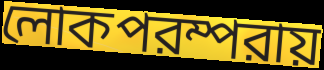
লোকপরম্পরায়